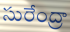
సురేంద్రా